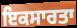
ਇਕਸਾਰਤਾ